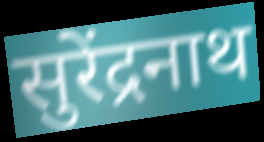
सुरेंद्रनाथ